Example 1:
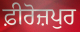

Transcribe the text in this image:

ਫ਼ੀਰੋਜ਼ਪੁਰ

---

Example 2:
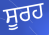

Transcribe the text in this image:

ਸੂਰਹ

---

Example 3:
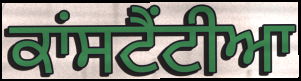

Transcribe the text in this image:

ਕਾਂਸਟੈਂਟੀਆ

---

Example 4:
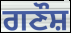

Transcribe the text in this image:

ਗਣੌਸ਼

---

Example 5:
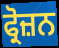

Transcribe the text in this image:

ਫ੍ਰੋਜ਼ਨ